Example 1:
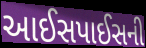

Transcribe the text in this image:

આઈસપાઈસની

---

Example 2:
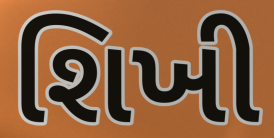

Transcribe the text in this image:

શિખી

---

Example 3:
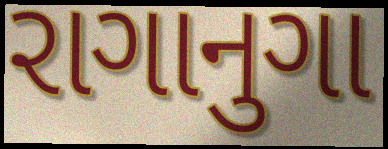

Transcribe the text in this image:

રાગાનુગા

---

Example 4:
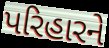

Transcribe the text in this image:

પરિહારને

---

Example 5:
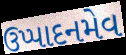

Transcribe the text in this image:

ઉપ્પાદનમેવ